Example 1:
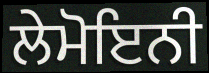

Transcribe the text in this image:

ਲੇਮੋਇਨੀ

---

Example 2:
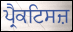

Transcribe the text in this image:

ਪ੍ਰੈਕਟਿਸਜ਼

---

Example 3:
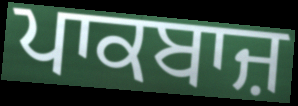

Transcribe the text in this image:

ਪਾਕਬਾਜ਼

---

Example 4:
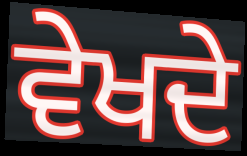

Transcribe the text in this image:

ਵੇਖਦੇ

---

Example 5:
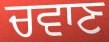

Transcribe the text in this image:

ਚਵਾਣ